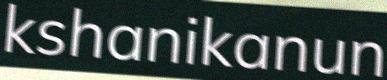
kshanikanun